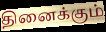
தினைக்கும்